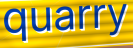
quarry